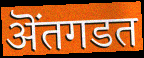
ऄंतगडत